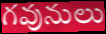
గవునులు